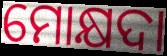
ମୋକ୍ଷଦା